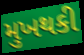
મુખથકી